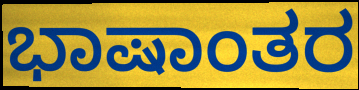
ಭಾಷಾಂತರ